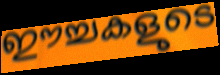
ഈച്ചകളുടെ